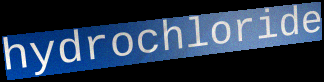
hydrochloride